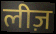
लीज़